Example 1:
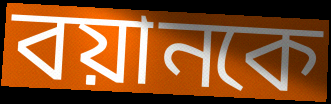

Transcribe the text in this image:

বয়ানকে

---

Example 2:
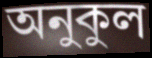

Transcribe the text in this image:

অনুকুল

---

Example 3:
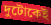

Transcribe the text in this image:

দুটোকেই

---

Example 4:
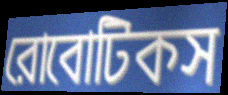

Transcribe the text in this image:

রোবোটিকস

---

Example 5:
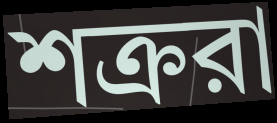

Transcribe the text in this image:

শক্ররা